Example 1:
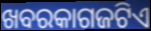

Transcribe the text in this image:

ଖବରକାଗଜଟିଏ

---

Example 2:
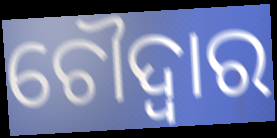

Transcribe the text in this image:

ଚୌଦ୍ବାର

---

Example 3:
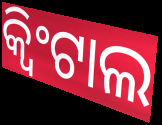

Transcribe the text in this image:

କ୍ୱିଂଟାଲ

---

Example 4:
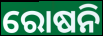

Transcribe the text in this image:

ରୋଷନି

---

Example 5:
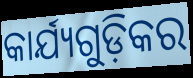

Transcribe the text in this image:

କାର୍ଯ୍ୟଗୁଡ଼ିକର